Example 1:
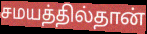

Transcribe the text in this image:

சமயத்தில்தான்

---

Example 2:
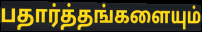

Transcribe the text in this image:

பதார்த்தங்களையும்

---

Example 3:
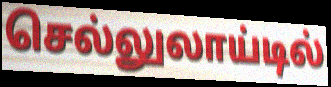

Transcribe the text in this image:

செல்லுலாய்டில்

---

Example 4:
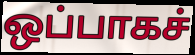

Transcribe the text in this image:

ஒப்பாகச்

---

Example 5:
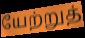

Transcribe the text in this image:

யேற்றுத்